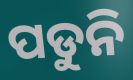
ପଡୁନି